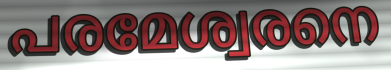
പരമേശ്വരനെ